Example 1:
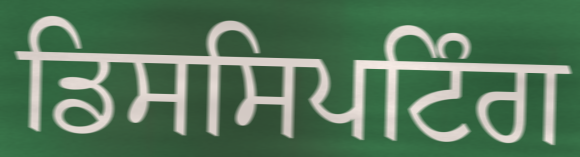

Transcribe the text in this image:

ਡਿਸਸਿਪਟਿੰਗ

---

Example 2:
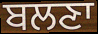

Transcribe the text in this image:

ਬਲਣਾ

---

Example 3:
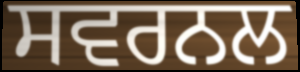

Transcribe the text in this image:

ਸਵਰਨਲ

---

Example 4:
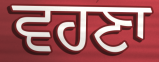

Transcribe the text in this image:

ਵਹਣਾ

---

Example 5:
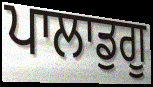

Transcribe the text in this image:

ਪਾਲਾਡੁਗੂ